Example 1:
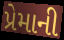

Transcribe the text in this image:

પ્રેમાની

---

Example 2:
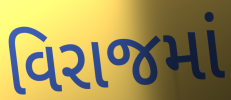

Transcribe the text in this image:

વિરાજમાં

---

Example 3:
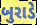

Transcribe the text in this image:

બુરાડે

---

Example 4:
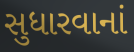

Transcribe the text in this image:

સુધારવાનાં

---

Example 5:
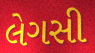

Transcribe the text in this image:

લેગસી